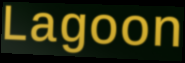
Lagoon